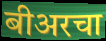
बीअरचा